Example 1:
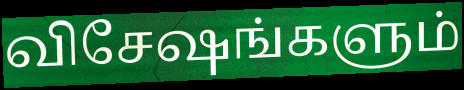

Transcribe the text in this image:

விசேஷங்களும்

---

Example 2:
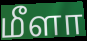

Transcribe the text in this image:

மீளா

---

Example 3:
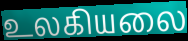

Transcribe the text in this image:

உலகியலை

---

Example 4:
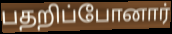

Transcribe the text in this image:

பதறிப்போனார்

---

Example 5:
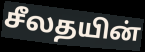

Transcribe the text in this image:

சீலதயின்